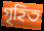
গৃহিত